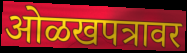
ओळखपत्रावर